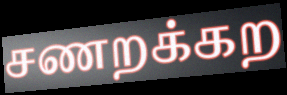
சணறக்கற